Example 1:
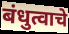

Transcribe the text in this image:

बंधुत्वाचे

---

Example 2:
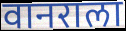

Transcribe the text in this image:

वानराला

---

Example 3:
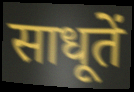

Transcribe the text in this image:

साधूतें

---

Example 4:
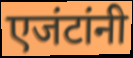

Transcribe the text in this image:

एजंटांनी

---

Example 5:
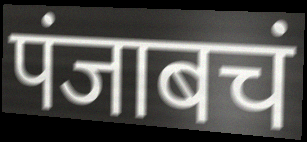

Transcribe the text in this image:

पंजाबचं